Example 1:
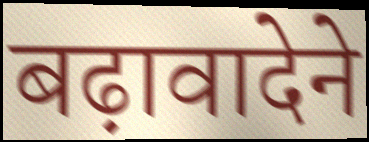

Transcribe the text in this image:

बढ़ावादेने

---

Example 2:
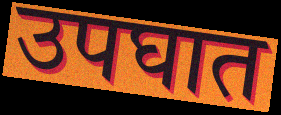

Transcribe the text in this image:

उपघात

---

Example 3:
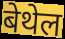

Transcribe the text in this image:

बेथेल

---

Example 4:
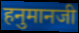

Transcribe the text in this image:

हनुमानजी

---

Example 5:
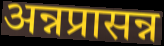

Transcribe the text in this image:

अन्नप्रासन्न